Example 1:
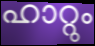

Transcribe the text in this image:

ഹാറ്റും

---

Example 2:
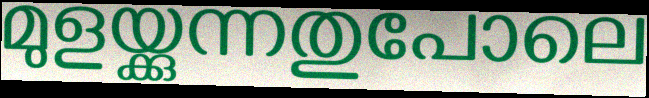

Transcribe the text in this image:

മുളയ്ക്കുന്നതുപോലെ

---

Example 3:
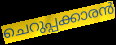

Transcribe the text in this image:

ചെറുപ്പക്കാരൻ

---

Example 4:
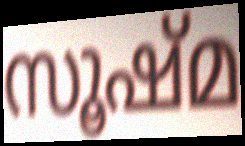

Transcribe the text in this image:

സൂഷ്മ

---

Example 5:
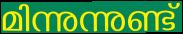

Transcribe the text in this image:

മിന്നുന്നുണ്ട്